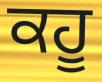
ਕਹੂ